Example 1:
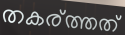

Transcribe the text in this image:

തകര്ത്തത്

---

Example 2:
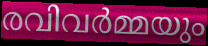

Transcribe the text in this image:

രവിവർമ്മയും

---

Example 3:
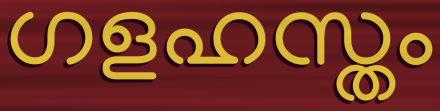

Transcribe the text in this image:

ഗളഹസ്തം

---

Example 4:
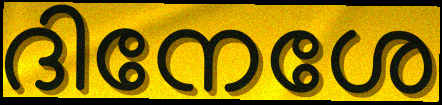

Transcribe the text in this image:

ദിനേശേ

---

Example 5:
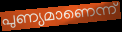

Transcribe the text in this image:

പുണ്യമാണെന്ന്